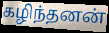
கழிந்தனன்